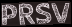
PRSV